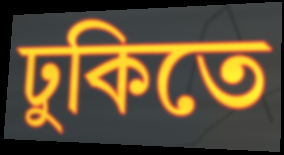
ঢুকিতে